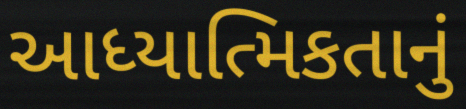
આધ્યાત્મિકતાનું